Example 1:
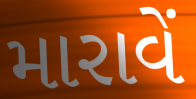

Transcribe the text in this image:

મારાવેં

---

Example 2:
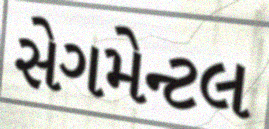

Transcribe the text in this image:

સેગમેન્ટલ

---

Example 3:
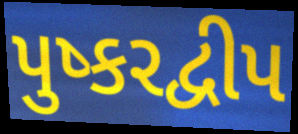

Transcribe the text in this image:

પુષ્કરદ્વીપ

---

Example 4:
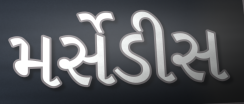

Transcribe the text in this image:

મર્સેડીસ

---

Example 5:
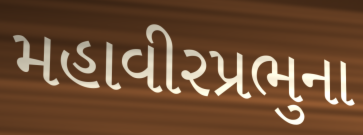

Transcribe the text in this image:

મહાવીરપ્રભુના